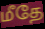
மீதே